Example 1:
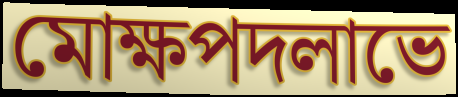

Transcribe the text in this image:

মোক্ষপদলাভে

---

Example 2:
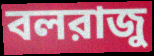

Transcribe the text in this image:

বলরাজু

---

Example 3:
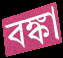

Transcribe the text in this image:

বঙ্কা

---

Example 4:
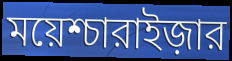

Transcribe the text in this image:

ময়েশ্চারাইজ়ার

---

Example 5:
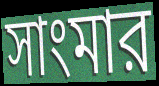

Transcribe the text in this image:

সাংমার